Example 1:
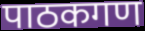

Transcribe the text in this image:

पाठकगण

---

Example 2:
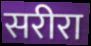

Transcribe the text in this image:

सरीरा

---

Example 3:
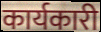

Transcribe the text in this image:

कार्यकारी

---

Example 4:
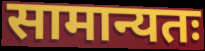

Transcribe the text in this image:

सामान्यतः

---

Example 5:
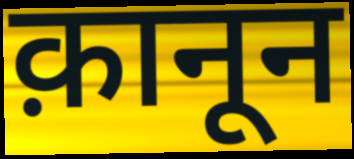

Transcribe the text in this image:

क़ानून